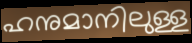
ഹനുമാനിലുള്ള